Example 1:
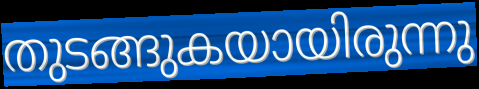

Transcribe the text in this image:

തുടങ്ങുകയായിരുന്നു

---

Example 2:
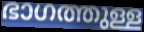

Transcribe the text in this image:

ഭാഗത്തുള്ള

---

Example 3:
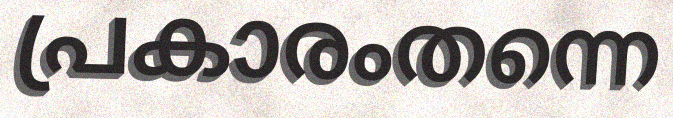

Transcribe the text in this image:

പ്രകാരംതന്നെ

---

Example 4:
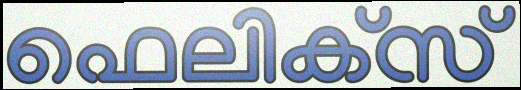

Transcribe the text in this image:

ഫെലിക്‌സ്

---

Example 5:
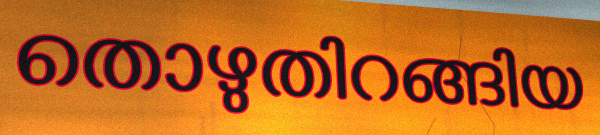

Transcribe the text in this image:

തൊഴുതിറങ്ങിയ